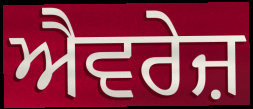
ਐਵਰੇਜ਼